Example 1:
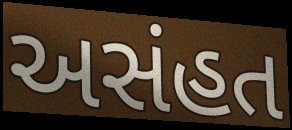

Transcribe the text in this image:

અસંહત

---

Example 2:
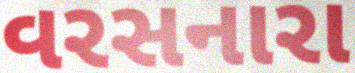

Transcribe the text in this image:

વરસનારા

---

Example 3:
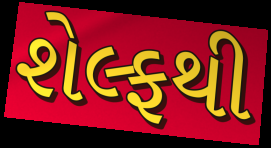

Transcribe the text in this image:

શેલ્ફથી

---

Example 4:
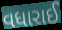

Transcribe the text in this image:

વધારાઈ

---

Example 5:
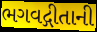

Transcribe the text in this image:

ભગવદ્ગીતાની